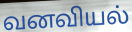
வனவியல்